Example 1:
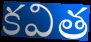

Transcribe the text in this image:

కవిత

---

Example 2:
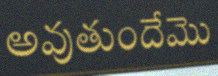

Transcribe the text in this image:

అవుతుందేమొ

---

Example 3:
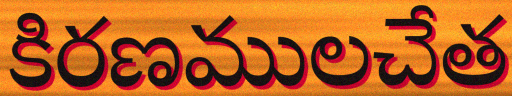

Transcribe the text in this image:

కిరణములచేత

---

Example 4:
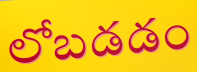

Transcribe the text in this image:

లోబడడం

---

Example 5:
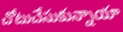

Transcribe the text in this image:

చోటుచేసుకున్నాయా